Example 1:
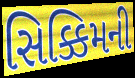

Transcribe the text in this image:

સિક્કિમની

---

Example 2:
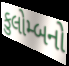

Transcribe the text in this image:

કુલોમ્બનો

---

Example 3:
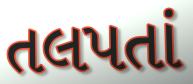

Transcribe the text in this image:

તલપતાં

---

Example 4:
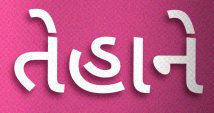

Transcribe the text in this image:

તેહાને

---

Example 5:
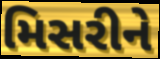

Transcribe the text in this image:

મિસરીને